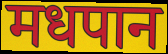
मधपान